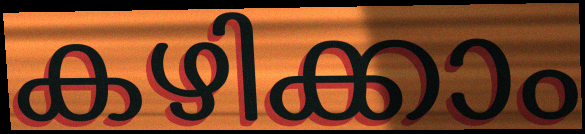
കഴിക്കാം